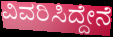
ವಿವರಿಸಿದ್ದೇನೆ